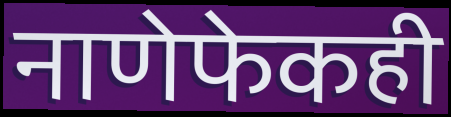
नाणेफेकही